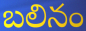
బలినం